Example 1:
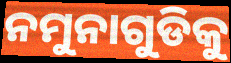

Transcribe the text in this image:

ନମୁନାଗୁଡିକୁ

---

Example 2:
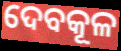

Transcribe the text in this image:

ଦେବକୂଳ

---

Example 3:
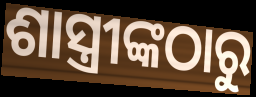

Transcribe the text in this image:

ଶାସ୍ତ୍ରୀଙ୍କଠାରୁ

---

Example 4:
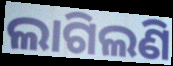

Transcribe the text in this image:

ଲାଗିଲଣି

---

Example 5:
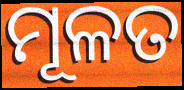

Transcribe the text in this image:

ମୂଳତ